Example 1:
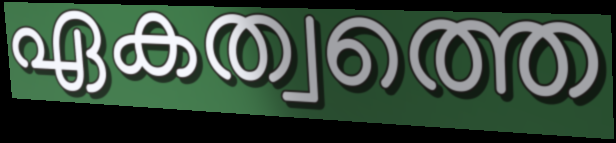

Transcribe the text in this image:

ഏകത്വത്തെ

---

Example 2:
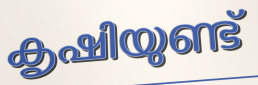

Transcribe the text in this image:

കൃഷിയുണ്ട്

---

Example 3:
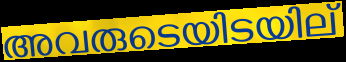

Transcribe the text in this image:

അവരുടെയിടയില്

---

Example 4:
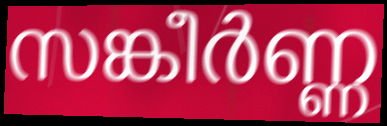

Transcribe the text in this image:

സങ്കീർണ്ണ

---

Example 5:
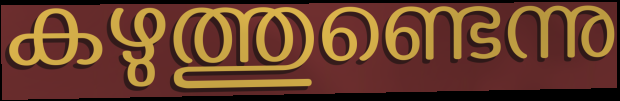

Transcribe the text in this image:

കഴുത്തുണ്ടെന്നു